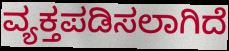
ವ್ಯಕ್ತಪಡಿಸಲಾಗಿದೆ